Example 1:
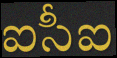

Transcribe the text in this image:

ఐసీఐ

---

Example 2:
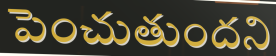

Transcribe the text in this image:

పెంచుతుందని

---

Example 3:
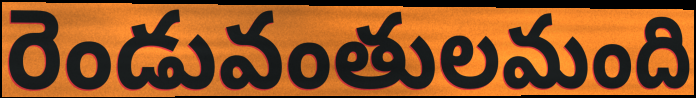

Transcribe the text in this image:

రెండువంతులమంది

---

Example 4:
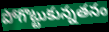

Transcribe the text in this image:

పోగొట్టుకున్నతనం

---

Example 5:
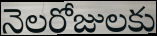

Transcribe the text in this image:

నెలరోజులకు